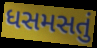
ધસમસતું